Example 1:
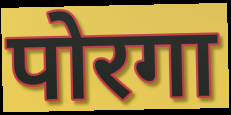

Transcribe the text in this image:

पोरगा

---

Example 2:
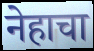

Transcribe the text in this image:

नेहाचा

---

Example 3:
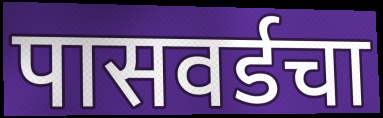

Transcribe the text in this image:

पासवर्डचा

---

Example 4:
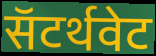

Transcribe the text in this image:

सॅटर्थवेट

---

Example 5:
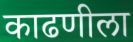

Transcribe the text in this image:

काढणीला